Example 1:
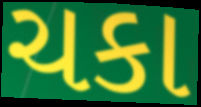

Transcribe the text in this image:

ચકા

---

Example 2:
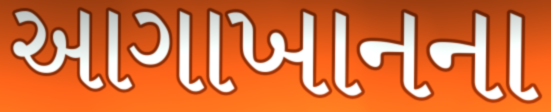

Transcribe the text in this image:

આગાખાનના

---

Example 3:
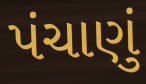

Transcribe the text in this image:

પંચાણું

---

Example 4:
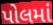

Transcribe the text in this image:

પોલમાં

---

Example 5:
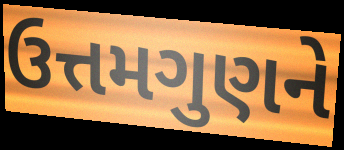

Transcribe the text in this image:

ઉત્તમગુણને